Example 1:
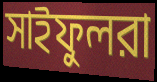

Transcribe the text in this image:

সাইফুলরা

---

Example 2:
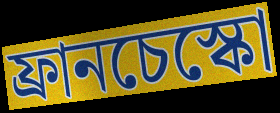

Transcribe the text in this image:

ফ্রানচেস্কো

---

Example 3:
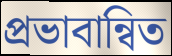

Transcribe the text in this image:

প্রভাবান্বিত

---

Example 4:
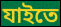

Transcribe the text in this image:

যাইতে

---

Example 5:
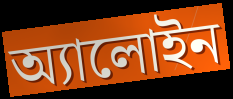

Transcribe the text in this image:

অ্যালোইন